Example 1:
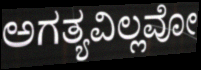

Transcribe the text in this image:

ಅಗತ್ಯವಿಲ್ಲವೋ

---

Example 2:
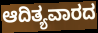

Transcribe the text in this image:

ಆದಿತ್ಯವಾರದ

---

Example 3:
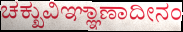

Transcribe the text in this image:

ಚಕ್ಖುವಿಞ್ಞಾಣಾದೀನಂ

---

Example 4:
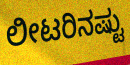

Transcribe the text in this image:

ಲೀಟರಿನಷ್ಟು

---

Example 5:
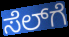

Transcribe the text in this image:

ಸೆಲ್‍ಗೆ